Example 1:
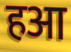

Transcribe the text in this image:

हआ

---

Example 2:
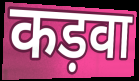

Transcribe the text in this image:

कड़वा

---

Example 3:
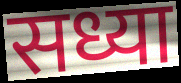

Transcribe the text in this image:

सध्या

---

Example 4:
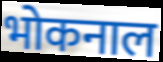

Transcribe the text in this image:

भोकनाल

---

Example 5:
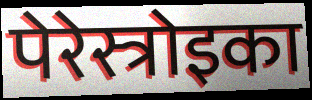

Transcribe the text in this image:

पेरेस्त्रोइका